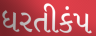
ધરતીકંપ